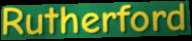
Rutherford